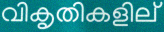
വികൃതികളില്